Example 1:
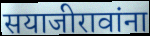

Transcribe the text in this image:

सयाजीरावांना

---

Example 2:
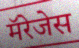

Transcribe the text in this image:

मॅरेजेस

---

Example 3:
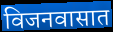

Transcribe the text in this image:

विजनवासात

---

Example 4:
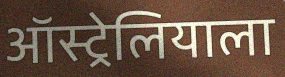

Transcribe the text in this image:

ऑस्ट्रेलियाला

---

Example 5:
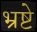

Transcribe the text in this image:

भ्रष्टे